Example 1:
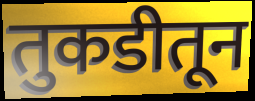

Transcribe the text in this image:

तुकडीतून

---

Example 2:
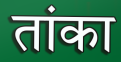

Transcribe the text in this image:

तांका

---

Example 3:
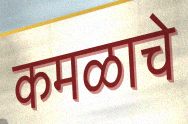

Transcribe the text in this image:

कमळाचे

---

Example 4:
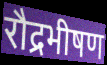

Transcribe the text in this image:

रौद्रभीषण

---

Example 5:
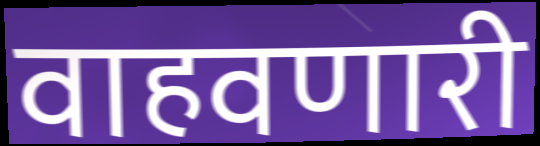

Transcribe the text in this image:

वाहवणारी